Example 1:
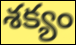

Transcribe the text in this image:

శక్యం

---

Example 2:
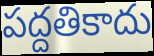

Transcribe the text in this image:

పద్దతికాదు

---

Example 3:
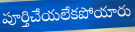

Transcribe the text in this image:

పూర్తిచేయలేకపోయారు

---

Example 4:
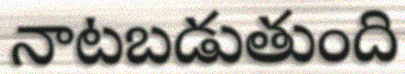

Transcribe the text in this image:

నాటబడుతుంది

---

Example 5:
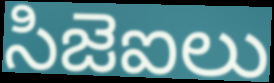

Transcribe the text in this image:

సిజెఐలు